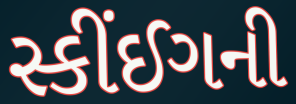
સ્કીંઈગની